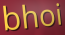
bhoi